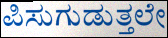
ಪಿಸುಗುಡುತ್ತಲೇ